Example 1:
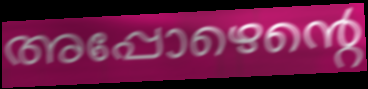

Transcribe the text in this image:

അപ്പോഴെന്റെ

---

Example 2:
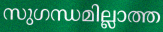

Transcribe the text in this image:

സുഗന്ധമില്ലാത്ത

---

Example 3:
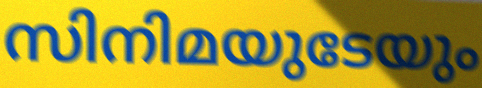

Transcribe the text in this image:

സിനിമയുടേയും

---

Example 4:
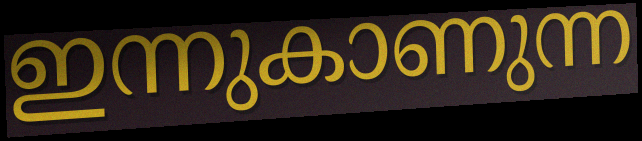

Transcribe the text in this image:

ഇന്നുകാണുന്ന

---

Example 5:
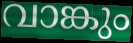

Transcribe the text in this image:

വാങ്കും